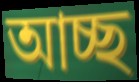
আচ্ছ